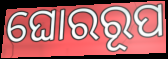
ଘୋରରୂପ